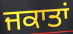
ਜਕਾਤਾਂ